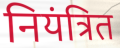
नियंत्रित